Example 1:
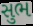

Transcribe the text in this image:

સુભ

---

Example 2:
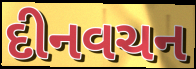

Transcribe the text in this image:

દીનવચન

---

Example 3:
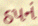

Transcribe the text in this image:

ઠપનં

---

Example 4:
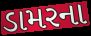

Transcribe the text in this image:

ડામરના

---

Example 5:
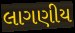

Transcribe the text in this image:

લાગણીય